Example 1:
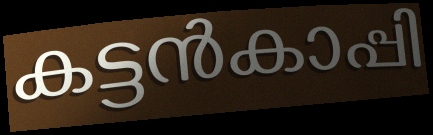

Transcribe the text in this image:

കട്ടൻകാപ്പി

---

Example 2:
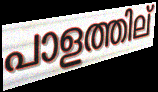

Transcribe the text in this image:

പാളത്തില്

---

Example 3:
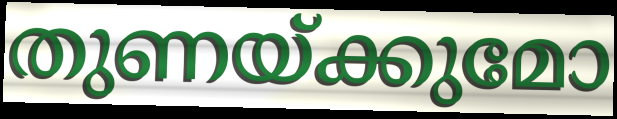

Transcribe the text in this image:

തുണയ്ക്കുമോ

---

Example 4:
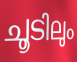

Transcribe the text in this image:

ചൂടിലും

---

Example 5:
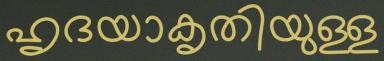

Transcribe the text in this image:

ഹൃദയാകൃതിയുള്ള